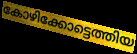
കോഴിക്കോട്ടെത്തിയ